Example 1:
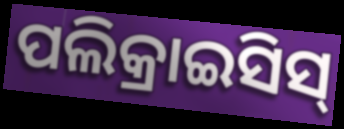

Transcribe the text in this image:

ପଲିକ୍ରାଇସିସ୍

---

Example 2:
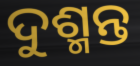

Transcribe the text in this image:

ଦୁଶ୍ମନ୍ତ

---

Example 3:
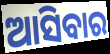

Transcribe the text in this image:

ଆସିବାର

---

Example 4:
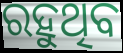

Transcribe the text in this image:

ରହୁଥିବ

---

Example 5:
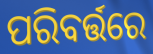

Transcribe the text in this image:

ପରିବର୍ତ୍ତରେ